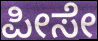
ಪೀಸೇ